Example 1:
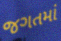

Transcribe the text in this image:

જગતમાં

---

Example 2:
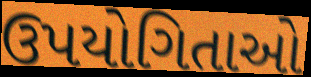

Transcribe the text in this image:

ઉપયોગિતાઓ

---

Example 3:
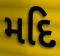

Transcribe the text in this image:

મદિ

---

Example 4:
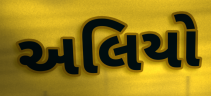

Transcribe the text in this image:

અલિયો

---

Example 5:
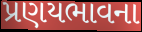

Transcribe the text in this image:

પ્રણયભાવના